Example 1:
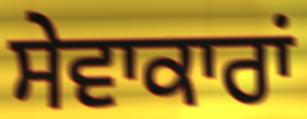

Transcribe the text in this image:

ਸੇਵਾਕਾਰਾਂ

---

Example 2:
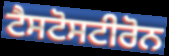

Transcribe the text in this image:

ਟੈਸਟੋਸਟੀਰੋਨ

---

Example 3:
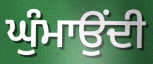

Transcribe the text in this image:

ਘੁੰਮਾਉਂਦੀ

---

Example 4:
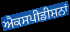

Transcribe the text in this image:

ਐਕਸਪੀਡੀਸ਼ਨਾਂ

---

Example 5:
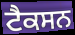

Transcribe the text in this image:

ਟੈਕਸਨ